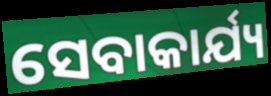
ସେବାକାର୍ଯ୍ୟ